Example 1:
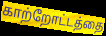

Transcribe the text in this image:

காற்றோட்டத்தை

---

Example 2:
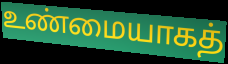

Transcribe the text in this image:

உண்மையாகத்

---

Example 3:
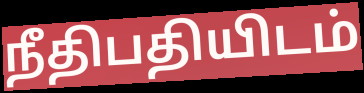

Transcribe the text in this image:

நீதிபதியிடம்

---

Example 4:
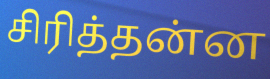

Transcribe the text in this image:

சிரித்தன்ன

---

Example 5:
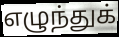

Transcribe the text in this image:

எழுந்துக்